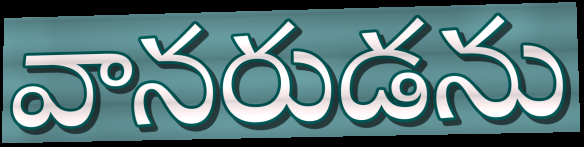
వానరుడను